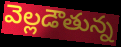
వెల్లడౌతున్న